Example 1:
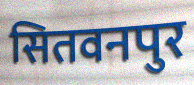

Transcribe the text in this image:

सितवनपुर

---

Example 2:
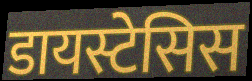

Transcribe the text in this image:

डायस्टेसिस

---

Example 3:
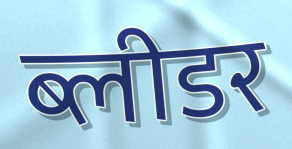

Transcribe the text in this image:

ब्लीडर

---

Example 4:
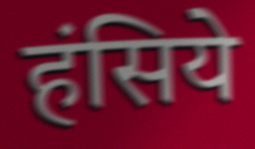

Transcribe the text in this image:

हंसिये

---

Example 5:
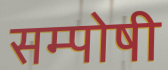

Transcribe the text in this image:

सम्पोषी